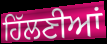
ਹਿੱਲਣੀਆਂ